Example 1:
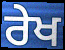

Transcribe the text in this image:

ਰੇਖ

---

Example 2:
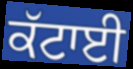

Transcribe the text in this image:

ਕੱਟਾਈ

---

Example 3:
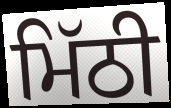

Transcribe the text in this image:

ਮਿੱਠੀ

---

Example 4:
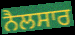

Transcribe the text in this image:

ਨੈਲਸਾਰ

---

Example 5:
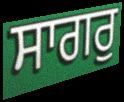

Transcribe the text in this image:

ਸਾਗਰੁ